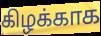
கிழக்காக